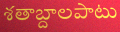
శతాబ్దాలపాటు